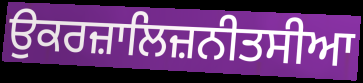
ਉਕਰਜ਼ਾਲਿਜ਼ਨੀਤਸੀਆ